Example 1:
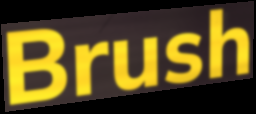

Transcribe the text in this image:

Brush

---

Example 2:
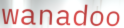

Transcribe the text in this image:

wanadoo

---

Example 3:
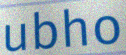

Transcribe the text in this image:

ubho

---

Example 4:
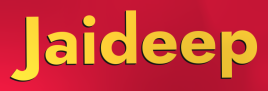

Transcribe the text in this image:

Jaideep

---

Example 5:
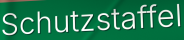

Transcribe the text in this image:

Schutzstaffel